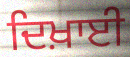
ਦਿਖ਼ਾਈ